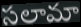
సలామా